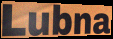
Lubna